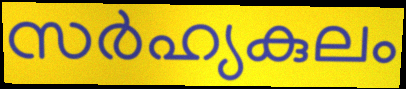
സർഹ്യകുലം